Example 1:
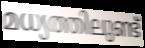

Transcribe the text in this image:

മധ്യത്തിലുണ്ട്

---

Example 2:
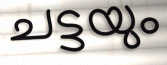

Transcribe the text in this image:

ചട്ടയും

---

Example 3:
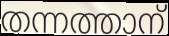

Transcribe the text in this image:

തന്നത്താന്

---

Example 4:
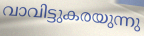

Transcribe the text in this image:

വാവിട്ടുകരയുന്നു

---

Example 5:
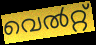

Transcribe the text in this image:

വെൽറ്റ്